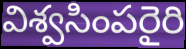
విశ్వసింపరైరి